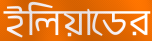
ইলিয়াডের